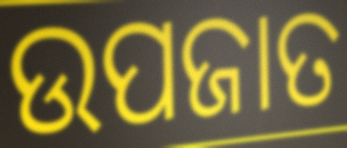
ଉପଜାତ